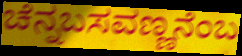
ಚೆನ್ನಬಸವಣ್ಣನೆಂಬ